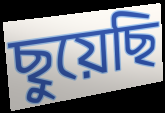
ছুয়েছি